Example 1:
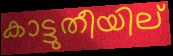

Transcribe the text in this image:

കാട്ടുതീയില്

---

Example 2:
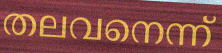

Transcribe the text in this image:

തലവനെന്ന്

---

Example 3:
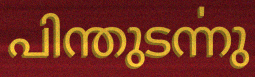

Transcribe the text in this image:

പിന്തുടൎന്നു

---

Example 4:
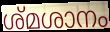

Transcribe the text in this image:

ശ്മശാനം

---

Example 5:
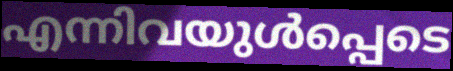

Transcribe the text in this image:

എന്നിവയുൾപ്പെടെ